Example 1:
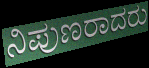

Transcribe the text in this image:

ನಿಪುಣರಾದರು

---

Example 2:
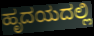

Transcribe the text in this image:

ಹೃದಯದಲ್ಲಿ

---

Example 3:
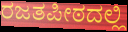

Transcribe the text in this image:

ರಜತಪೀಠದಲ್ಲಿ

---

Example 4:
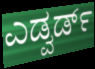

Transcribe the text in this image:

ಎಡ್ವರ್ಡ್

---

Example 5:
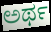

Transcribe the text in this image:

ಅರ್ಥ